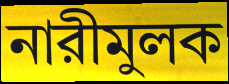
নারীমুলক